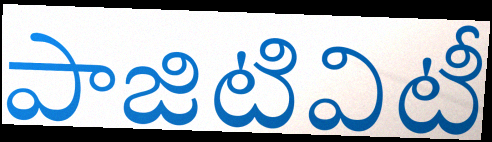
పాజిటివిటీ